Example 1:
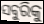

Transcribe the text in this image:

ସବୁରିକୁ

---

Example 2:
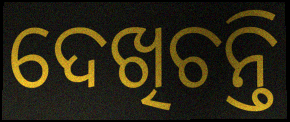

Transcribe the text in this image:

ଦେଖିଚନ୍ତି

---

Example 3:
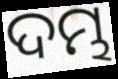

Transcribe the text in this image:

ଦମ୍ଭ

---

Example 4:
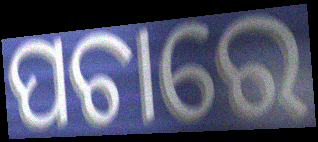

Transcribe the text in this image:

ପଚାରେ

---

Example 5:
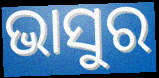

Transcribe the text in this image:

ଭାସୁର